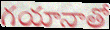
గయానాతో